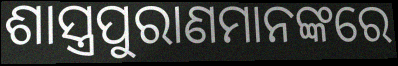
ଶାସ୍ତ୍ରପୁରାଣମାନଙ୍କରେ